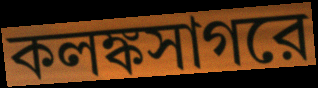
কলঙ্কসাগরে